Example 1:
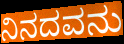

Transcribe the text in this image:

ನಿನದವನು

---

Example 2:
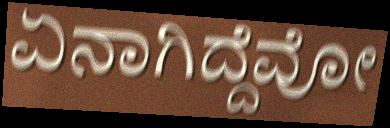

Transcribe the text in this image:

ಏನಾಗಿದ್ದೆವೋ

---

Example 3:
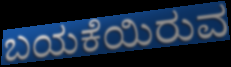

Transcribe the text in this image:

ಬಯಕೆಯಿರುವ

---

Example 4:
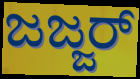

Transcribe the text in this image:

ಜಜ್ಜರ್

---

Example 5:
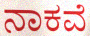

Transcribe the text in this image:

ನಾಕವೆ